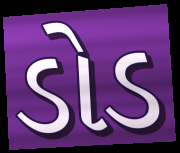
ડોડ